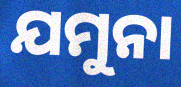
ଯମୁନା